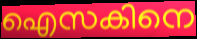
ഐസകിനെ